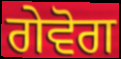
ਗੇਵੋਗ